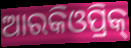
ଆରକିଓପ୍ରିକ୍